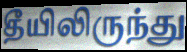
தீயிலிருந்து